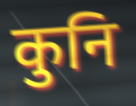
कुनि